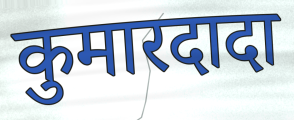
कुमारदादा